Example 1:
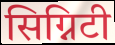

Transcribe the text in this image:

सिग्निटी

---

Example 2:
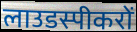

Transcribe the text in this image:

लाउडस्पीकरों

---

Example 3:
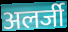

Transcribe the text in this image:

अलर्जी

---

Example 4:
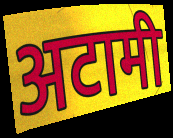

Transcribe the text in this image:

अटामी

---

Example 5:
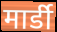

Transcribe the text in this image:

मार्डी